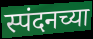
स्पंदनच्या